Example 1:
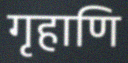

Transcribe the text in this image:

गृहाणि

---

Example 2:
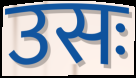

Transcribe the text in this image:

उसः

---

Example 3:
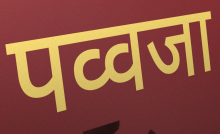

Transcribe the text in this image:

पव्वजा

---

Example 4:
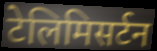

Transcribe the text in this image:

टेलिमिसर्टन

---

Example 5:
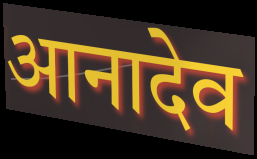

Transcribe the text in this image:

आनादेव